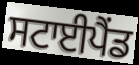
ਸਟਾਈਪੈਂਡ